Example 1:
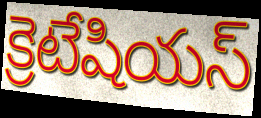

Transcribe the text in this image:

క్రెటేషియస్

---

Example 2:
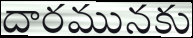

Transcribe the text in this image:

దారమునకు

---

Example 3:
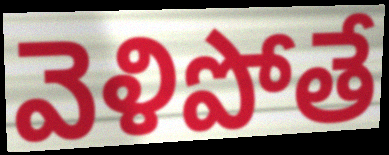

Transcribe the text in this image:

వెళిపోతే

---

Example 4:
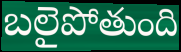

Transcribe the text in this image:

బలైపోతుంది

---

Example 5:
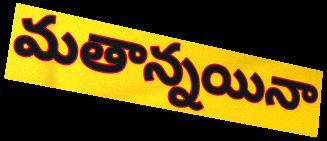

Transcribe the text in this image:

మతాన్నయినా